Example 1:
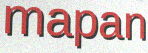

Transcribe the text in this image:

mapan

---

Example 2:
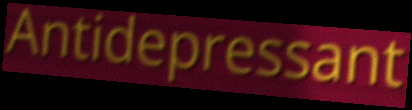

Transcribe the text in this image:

Antidepressant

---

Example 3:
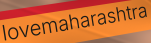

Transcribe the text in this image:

lovemaharashtra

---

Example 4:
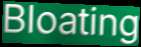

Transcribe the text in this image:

Bloating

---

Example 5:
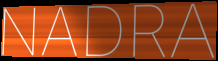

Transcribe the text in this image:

NADRA